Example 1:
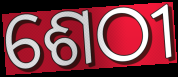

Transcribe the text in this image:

ଶେଠୀ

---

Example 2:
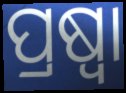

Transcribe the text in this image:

ପ୍ରଷ୍ୱା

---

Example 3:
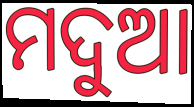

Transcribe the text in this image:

ମଦୁଆ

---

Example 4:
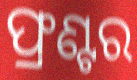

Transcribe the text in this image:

ଫ୍ରଣ୍ଟର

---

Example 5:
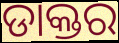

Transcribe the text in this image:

ଡାକ୍ତର